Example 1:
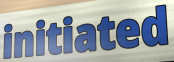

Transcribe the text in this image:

initiated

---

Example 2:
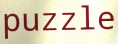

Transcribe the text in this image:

puzzle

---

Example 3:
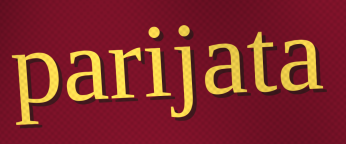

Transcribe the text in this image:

parijata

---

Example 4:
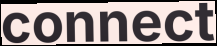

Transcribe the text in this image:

connect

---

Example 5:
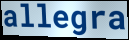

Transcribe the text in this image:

allegra